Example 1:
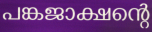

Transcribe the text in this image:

പങ്കജാക്ഷന്റെ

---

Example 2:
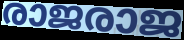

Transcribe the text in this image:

രാജരാജ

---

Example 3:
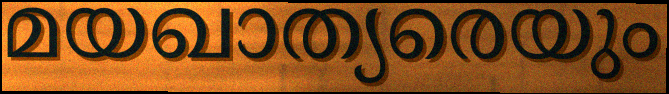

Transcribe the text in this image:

മയഖാത്യരെയും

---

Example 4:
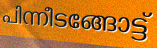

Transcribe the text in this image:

പിന്നീടങ്ങോട്ട്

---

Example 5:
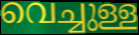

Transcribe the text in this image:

വെച്ചുള്ള